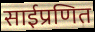
साईप्रणित